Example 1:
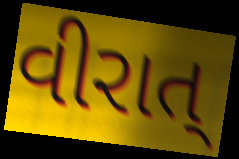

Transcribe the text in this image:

વીરાત્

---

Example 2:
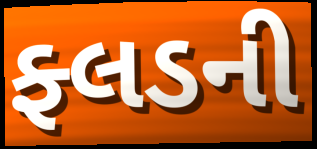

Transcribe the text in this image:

ફ્લડની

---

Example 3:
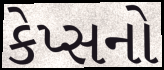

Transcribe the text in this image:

કેપ્સનો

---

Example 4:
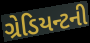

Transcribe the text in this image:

ગ્રેડિયન્ટની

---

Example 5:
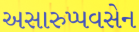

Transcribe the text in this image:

અસારુપ્પવસેન